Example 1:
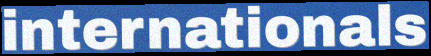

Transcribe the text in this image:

internationals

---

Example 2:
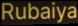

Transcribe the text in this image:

Rubaiya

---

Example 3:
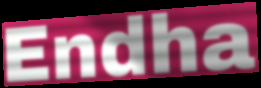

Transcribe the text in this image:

Endha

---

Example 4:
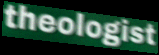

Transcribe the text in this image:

theologist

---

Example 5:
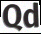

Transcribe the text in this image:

Qd